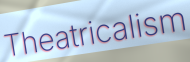
Theatricalism